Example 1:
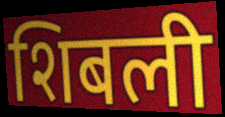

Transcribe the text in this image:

शिबली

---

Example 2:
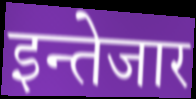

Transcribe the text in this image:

इन्तेजार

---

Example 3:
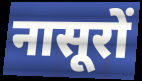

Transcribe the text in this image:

नासूरों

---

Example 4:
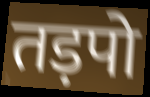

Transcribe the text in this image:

तड़पो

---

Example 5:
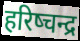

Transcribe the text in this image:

हरिष्चन्द्र